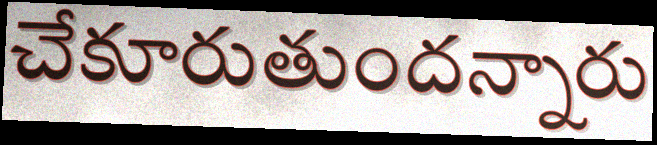
చేకూరుతుందన్నారు